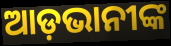
ଆଡ଼ଭାନୀଙ୍କ